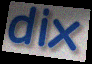
dix